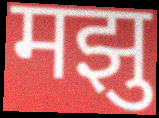
मझु